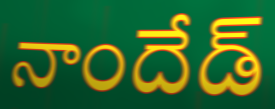
నాందేడ్